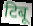
टिबू